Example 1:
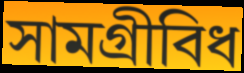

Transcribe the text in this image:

সামগ্ৰীবিধ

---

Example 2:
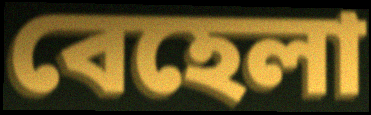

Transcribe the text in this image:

বেহেলা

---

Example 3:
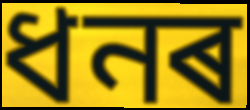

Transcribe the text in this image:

ধনৰ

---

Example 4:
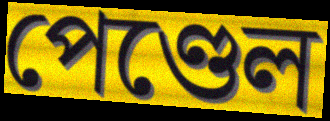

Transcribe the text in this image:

পেণ্ডেল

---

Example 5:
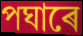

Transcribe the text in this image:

পঘাৰে